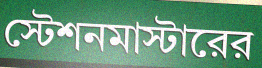
স্টেশনমাস্টারের